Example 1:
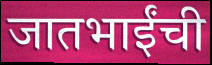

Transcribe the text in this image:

जातभाईंची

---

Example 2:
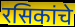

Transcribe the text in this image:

रसिकांचे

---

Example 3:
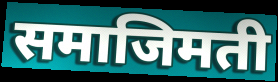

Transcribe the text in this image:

समाजिमती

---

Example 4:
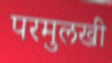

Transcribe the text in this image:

परमुलखी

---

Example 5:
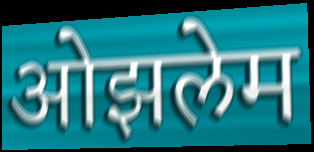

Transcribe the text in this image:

ओझलेम